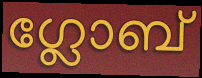
ഗ്ലോബ്